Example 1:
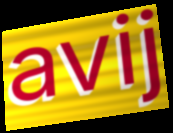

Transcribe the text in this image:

avij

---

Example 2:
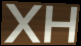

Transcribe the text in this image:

XH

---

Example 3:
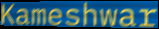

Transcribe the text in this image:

Kameshwar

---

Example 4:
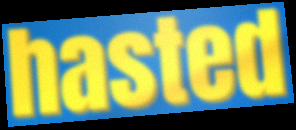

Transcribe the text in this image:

hasted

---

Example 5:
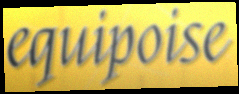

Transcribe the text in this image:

equipoise